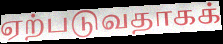
ஏற்படுவதாகக்